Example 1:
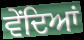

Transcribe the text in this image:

ਵੇਂਦਿਆਂ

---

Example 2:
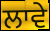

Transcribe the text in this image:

ਲਾਵੇ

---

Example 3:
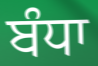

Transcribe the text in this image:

ਬੰਧਾ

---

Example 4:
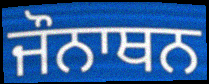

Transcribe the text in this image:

ਜੌਨਾਥਨ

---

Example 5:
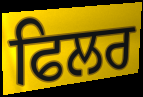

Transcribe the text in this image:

ਫਿਲਰ